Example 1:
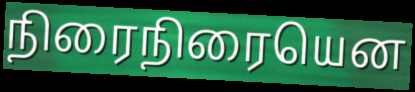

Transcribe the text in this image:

நிரைநிரையென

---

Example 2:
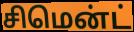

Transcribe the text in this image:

சிமென்ட்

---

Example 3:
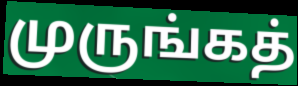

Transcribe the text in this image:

முருங்கத்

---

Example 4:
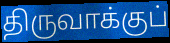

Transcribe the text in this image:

திருவாக்குப்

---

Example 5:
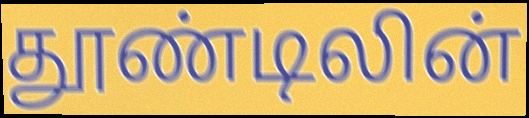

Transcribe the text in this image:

தூண்டிலின்